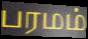
பரமம்